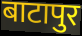
बाटापुर